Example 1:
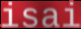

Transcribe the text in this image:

isai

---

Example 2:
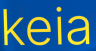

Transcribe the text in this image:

keia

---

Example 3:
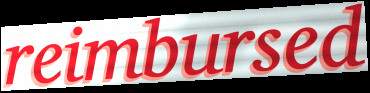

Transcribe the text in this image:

reimbursed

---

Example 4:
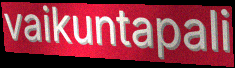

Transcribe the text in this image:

vaikuntapali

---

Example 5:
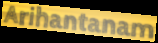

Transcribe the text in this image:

Arihantanam